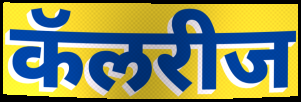
कॅलरीज